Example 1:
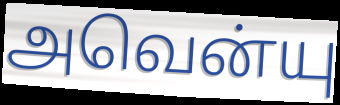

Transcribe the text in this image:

அவென்யு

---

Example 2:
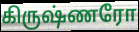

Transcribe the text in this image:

கிருஷ்ணரோ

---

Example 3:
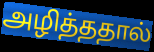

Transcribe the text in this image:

அழித்ததால்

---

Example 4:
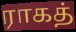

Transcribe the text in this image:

ராகத்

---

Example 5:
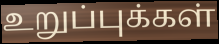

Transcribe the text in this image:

உறுப்புக்கள்